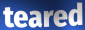
teared